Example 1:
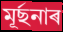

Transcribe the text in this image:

মূৰ্ছনাৰ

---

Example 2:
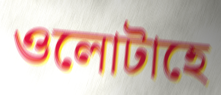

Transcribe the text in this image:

ওলোটাহে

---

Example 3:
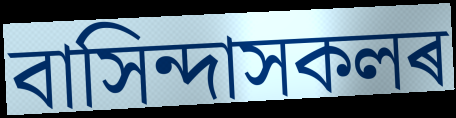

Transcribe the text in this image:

বাসিন্দাসকলৰ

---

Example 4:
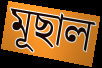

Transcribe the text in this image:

মূছাল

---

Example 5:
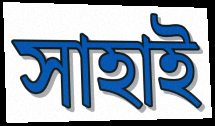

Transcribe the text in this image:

সাহাই